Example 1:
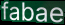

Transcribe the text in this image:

fabae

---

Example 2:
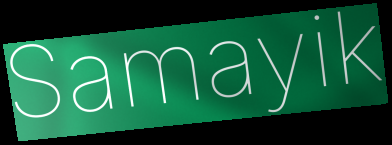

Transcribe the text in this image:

Samayik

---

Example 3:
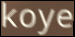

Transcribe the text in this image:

koye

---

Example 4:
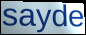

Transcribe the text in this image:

sayde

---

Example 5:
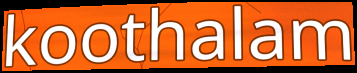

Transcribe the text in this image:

koothalam